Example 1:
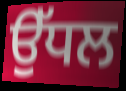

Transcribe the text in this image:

ਉੱਧਲ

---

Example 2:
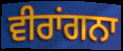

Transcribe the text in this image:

ਵੀਰਾਂਗਨਾ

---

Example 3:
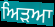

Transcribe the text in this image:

ਅਿੜਆ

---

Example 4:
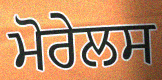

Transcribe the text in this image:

ਮੋਰੇਲਸ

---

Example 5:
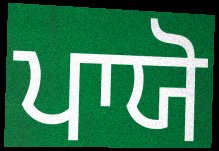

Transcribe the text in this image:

ਪਾਯੋ